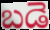
బడె